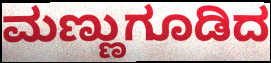
ಮಣ್ಣುಗೂಡಿದ